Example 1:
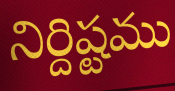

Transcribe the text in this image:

నిర్దిష్టము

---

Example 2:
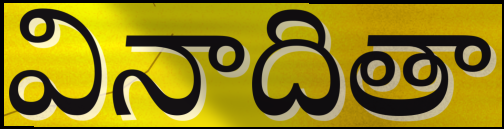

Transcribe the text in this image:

వినాదితా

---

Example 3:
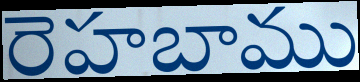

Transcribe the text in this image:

రెహబాము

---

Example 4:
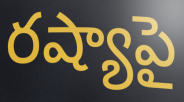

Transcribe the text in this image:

రష్యాపై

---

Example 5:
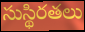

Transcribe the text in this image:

సుస్థిరతలు